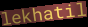
lekhatil